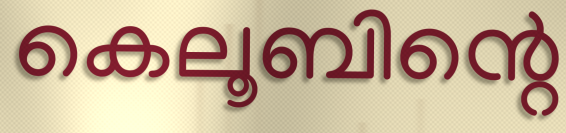
കെലൂബിന്റെ